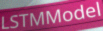
LSTMModel